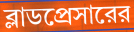
ব্লাডপ্রেসারের